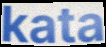
kata